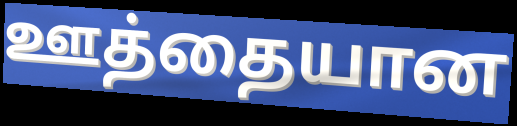
ஊத்தையான